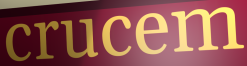
crucem